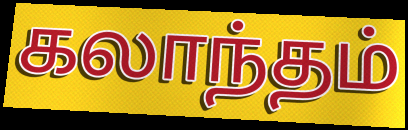
கலாந்தம்